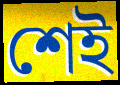
শেই